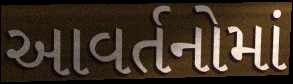
આવર્તનોમાં